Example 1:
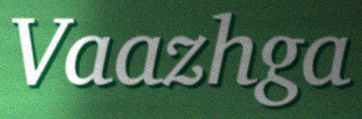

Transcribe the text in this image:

Vaazhga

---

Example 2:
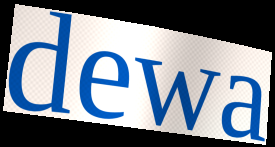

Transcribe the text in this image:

dewa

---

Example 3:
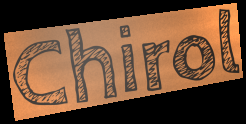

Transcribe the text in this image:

Chirol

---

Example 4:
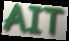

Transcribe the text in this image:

AIT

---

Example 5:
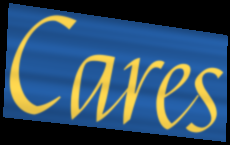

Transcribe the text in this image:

Cares